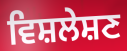
ਵਿਸ਼ਲੇਸ਼ਣ